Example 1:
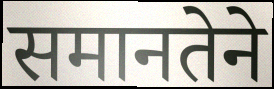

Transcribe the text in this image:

समानतेने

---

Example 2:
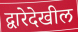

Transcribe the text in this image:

द्वारेदेखील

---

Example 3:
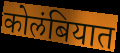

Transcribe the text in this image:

कोलंबियात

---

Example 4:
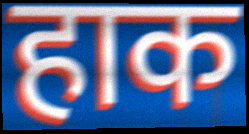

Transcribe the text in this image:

हाक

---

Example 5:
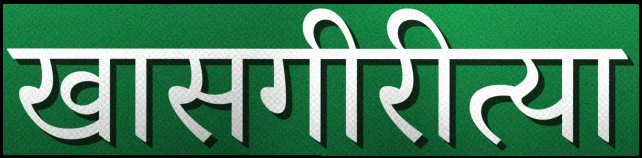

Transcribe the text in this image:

खासगीरीत्या